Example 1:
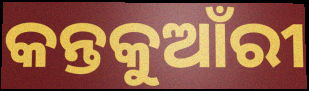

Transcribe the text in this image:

କନ୍ତକୁଆଁରୀ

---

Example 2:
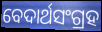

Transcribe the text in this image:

ବେଦାର୍ଥସଂଗ୍ରହ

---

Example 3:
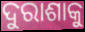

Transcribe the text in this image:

ଦୁରାଶାକୁ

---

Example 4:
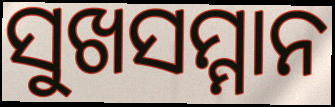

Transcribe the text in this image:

ସୁଖସମ୍ମାନ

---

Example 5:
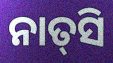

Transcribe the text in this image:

ନାତ୍‌ସି